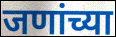
जणांच्या